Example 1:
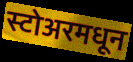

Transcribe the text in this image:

स्टोअरमधून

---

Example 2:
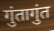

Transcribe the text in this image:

गुंतागुंत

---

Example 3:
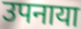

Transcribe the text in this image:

उपनाया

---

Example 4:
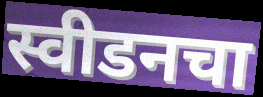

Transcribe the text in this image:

स्वीडनचा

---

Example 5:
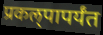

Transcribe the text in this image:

प्रकल्पापर्यंत